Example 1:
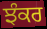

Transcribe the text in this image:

ਝੰਕਰ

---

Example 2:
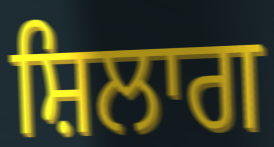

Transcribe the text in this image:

ਸ਼ਿਲਾਗ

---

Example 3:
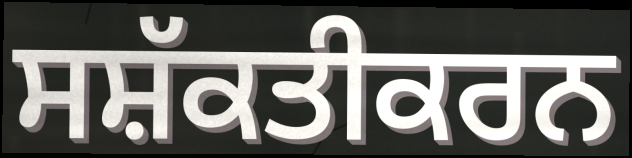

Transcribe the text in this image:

ਸਸ਼ੱਕਤੀਕਰਨ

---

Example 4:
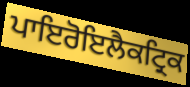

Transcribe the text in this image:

ਪਾਇਰੋਇਲੈਕਟ੍ਰਿਕ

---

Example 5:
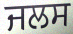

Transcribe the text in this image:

ਜਲਸ